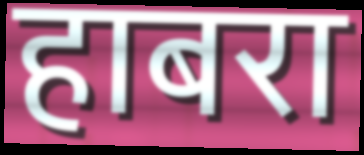
हाबरा